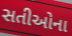
સતીઓના